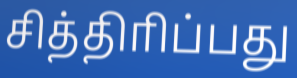
சித்திரிப்பது